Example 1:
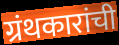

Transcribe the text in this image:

ग्रंथकारांची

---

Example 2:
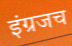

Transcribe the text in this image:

इंग्रजच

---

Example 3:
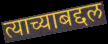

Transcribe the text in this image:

त्याच्याबद्दल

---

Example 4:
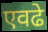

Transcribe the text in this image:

एवढे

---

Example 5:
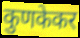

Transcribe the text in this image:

कुणकेकर